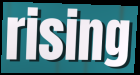
rising